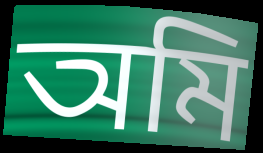
অমি